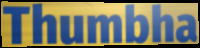
Thumbha